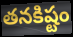
తనకిష్టం